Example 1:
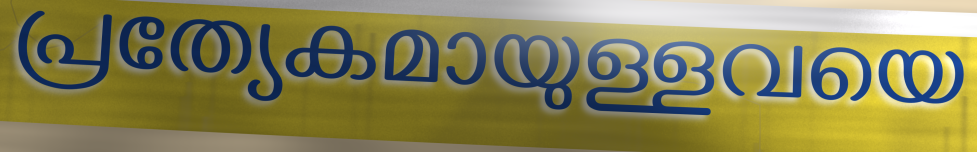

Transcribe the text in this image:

പ്രത്യേകമായുള്ളവയെ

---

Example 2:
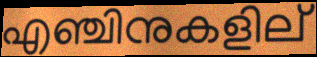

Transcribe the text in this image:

എഞ്ചിനുകളില്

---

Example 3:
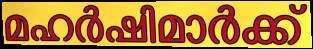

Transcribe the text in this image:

മഹർഷിമാർക്ക്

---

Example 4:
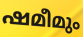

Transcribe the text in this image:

ഷമീമും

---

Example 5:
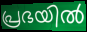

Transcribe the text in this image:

പ്രഭയിൽ